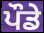
ਪੌਡੇ